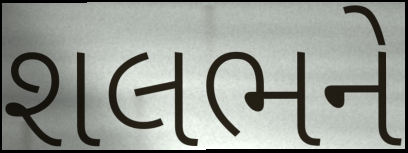
શલભને